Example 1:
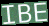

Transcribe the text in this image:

IBE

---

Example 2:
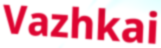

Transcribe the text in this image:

Vazhkai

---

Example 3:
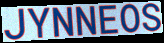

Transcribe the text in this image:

JYNNEOS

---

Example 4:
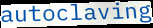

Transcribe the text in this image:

autoclaving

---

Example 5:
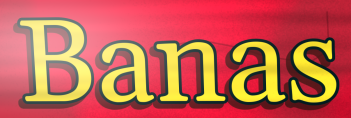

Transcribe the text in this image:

Banas